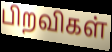
பிறவிகள்